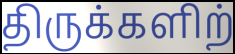
திருக்களிற்